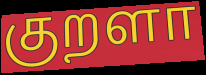
குறளா